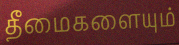
தீமைகளையும்